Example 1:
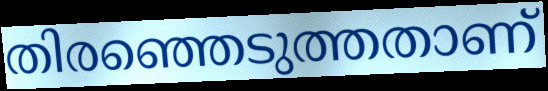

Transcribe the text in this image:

തിരഞ്ഞെടുത്തതാണ്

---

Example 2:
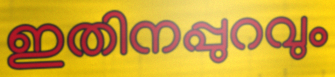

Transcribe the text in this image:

ഇതിനപ്പുറവും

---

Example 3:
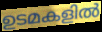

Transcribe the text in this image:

ഉടമകളിൽ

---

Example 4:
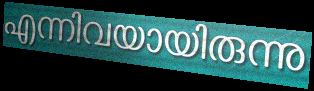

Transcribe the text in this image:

എന്നിവയായിരുന്നു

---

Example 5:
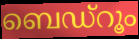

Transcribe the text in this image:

ബെഡ്റൂം